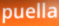
puella